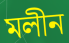
মলীন